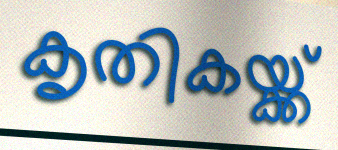
കൃതികയ്ക്ക്